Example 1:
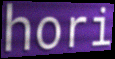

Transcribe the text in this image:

hori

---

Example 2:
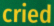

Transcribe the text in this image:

cried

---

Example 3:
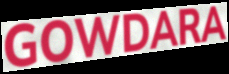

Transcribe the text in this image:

GOWDARA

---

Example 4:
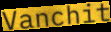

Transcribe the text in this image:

Vanchit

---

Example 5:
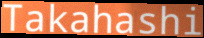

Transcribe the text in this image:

Takahashi